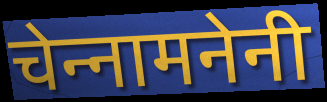
चेन्नामनेनी